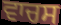
ਵਾਚਸ